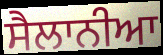
ਸੈਲਾਨੀਆ